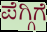
ಪೆಗ್ಗಿಗೆ